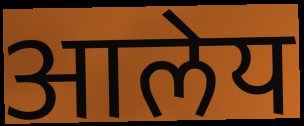
आलेय